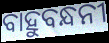
ବାହୁବନ୍ଧନୀ